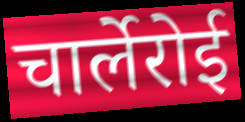
चार्लेरोई